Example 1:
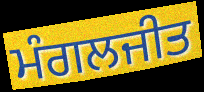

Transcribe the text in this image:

ਮੰਗਲਜੀਤ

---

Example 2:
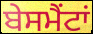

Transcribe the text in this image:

ਬੇਸਮੈਂਟਾਂ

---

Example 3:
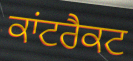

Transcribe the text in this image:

ਕਾਂਟਰੈਕਟ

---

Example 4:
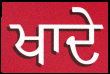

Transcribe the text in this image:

ਖਾਦੇ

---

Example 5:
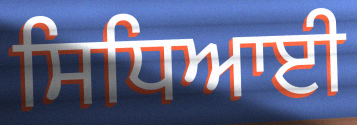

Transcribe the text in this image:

ਸਿਧਿਆਈ